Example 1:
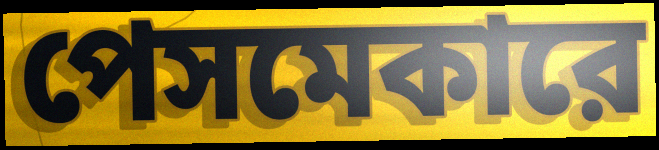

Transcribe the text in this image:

পেসমেকারে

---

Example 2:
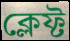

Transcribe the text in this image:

ক্লেফ্ট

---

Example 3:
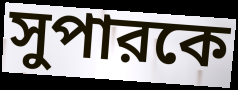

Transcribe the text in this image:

সুপারকে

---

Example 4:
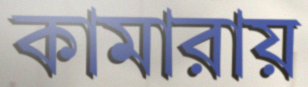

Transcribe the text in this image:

কামারায়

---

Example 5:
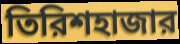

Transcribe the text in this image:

তিরিশহাজার